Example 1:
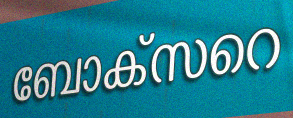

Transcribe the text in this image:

ബോക്‌സറെ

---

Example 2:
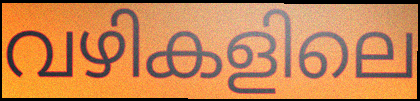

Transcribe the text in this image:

വഴികളിലെ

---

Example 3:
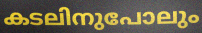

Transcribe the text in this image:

കടലിനുപോലും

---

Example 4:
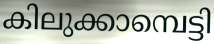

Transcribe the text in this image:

കിലുക്കാമ്പെട്ടി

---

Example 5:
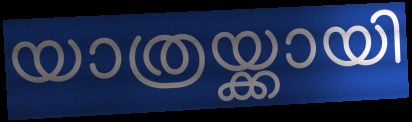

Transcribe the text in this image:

യാത്രയ്ക്കായി